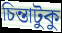
চিন্তাটুকু